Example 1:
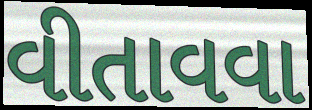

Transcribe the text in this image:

વીતાવવા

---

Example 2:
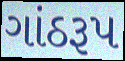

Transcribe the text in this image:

ગાંઠરૂપ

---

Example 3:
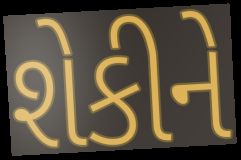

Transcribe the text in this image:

શેકીને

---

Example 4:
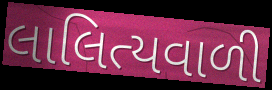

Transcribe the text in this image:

લાલિત્યવાળી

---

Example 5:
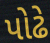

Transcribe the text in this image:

પોઢે